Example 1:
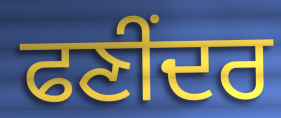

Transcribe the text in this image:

ਫਣੀਂਦਰ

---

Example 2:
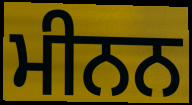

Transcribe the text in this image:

ਮੀਨਨ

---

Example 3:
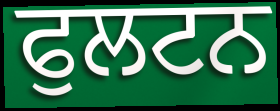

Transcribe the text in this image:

ਫੁਲਟਨ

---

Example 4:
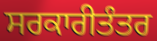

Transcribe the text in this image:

ਸਰਕਾਰੀਤੰਤਰ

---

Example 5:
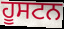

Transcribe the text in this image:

ਹੂਸਟਨ